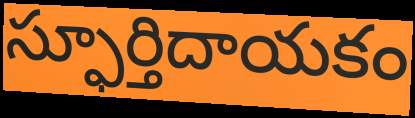
స్ఫూర్తిదాయకం